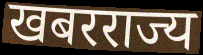
खबरराज्य